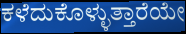
ಕಳೆದುಕೊಳ್ಳುತ್ತಾರೆಯೇ